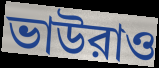
ভাউরাও